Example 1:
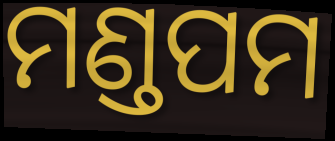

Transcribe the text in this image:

ମଣ୍ଡପମ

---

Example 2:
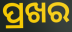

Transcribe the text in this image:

ପ୍ରଖର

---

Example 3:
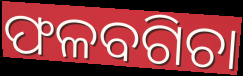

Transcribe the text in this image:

ଫଳବଗିଚା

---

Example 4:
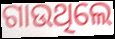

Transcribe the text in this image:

ଗାଉଥିଲେ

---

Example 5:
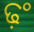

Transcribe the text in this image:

ଢ଼ଂ